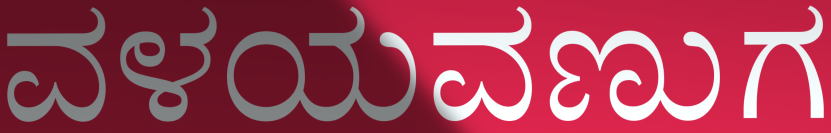
ವಳಯವಣುಗ